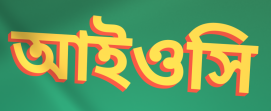
আইওসি